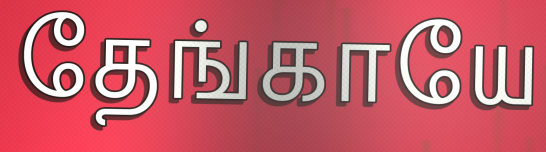
தேங்காயே